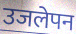
उजलेपन